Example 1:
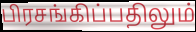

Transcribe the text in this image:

பிரசங்கிப்பதிலும்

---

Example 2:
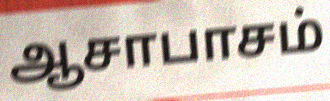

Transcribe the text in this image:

ஆசாபாசம்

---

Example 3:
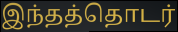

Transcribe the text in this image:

இந்தத்தொடர்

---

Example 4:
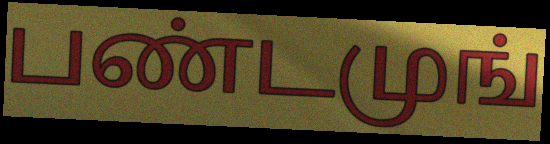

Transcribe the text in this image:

பண்டமுங்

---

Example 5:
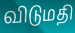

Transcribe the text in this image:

விடுமதி